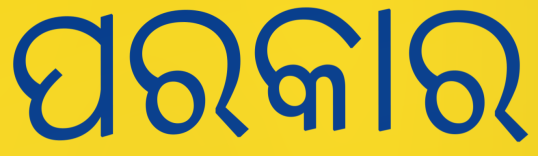
ପରକାର